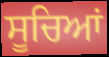
ਸੂਚਿਆਂ